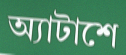
অ্যাটাশে